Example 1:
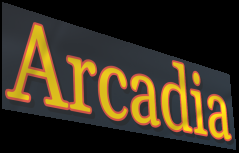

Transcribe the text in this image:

Arcadia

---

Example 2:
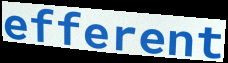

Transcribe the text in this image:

efferent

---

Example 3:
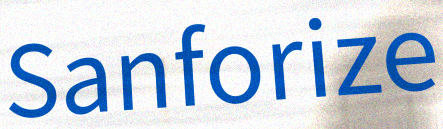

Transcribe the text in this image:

Sanforize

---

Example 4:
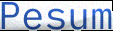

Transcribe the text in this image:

Pesum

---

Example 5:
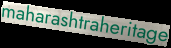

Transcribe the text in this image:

maharashtraheritage